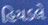
હિયડલે